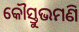
କୌସ୍ତୁଭମଣି